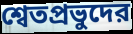
শ্বেতপ্রভুদের